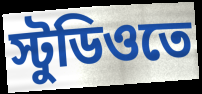
স্টুডিওতে